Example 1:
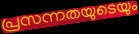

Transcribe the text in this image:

പ്രസന്നതയുടെയും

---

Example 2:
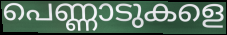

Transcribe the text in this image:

പെണ്ണാടുകളെ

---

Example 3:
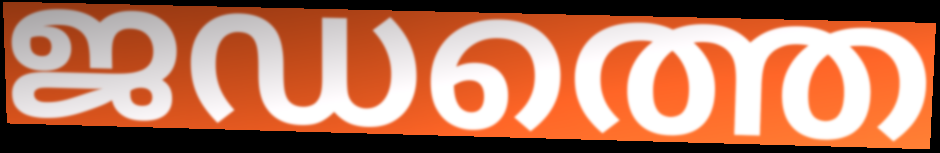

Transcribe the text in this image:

ജഡത്തെ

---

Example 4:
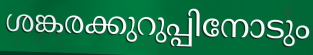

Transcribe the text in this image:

ശങ്കരക്കുറുപ്പിനോടും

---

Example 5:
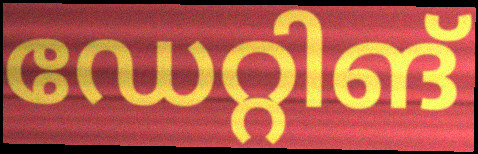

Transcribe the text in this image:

ഡേറ്റിങ്